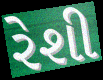
રેશી